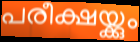
പരീക്ഷയ്ക്കും